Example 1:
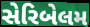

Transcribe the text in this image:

સેરિબેલમ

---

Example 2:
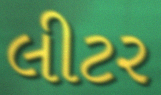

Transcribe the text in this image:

લીટર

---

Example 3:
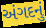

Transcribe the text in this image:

અંગદનું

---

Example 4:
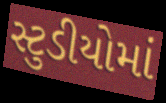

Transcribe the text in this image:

સ્ટુડીયોમાં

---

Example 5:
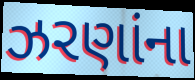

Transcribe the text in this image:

ઝરણાંના